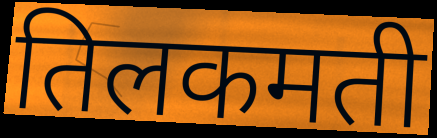
तिलकमती